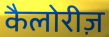
कैलोरीज़